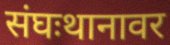
संघःथानावर